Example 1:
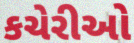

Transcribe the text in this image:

કચેરીઓ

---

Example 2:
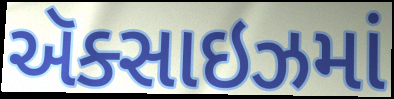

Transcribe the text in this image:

ઍક્સાઇઝમાં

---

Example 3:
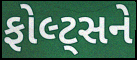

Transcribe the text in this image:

ફોલ્ટ્સને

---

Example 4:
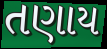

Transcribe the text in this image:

તણાય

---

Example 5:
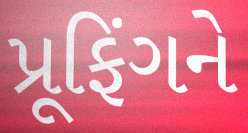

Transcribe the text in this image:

પ્રૂફિંગને